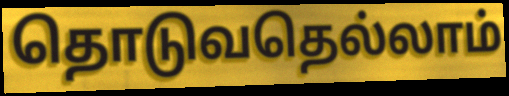
தொடுவதெல்லாம்